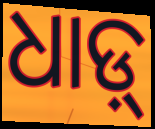
ଧାଡ଼୍